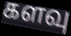
களவு